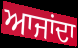
ਆਜਾਂਦਾ